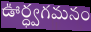
ఊర్ధ్వగమనం